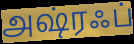
அஷ்ரஃப்